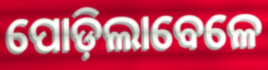
ପୋଡ଼ିଲାବେଳେ